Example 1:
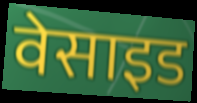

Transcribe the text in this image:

वेसाइड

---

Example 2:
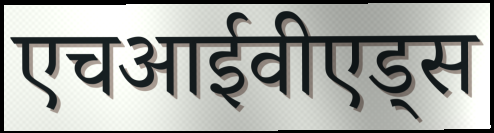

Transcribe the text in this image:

एचआईवीएड्स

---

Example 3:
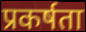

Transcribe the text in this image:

प्रकर्षता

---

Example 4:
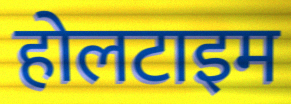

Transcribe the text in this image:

होलटाइम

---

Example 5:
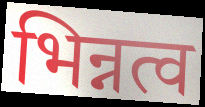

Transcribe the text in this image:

भिन्नत्व